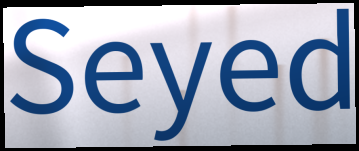
Seyed